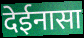
देईनासा